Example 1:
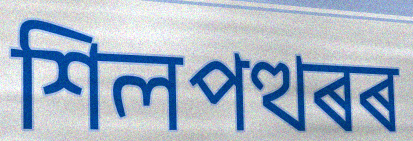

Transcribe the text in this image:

শিলপত্থৰৰ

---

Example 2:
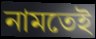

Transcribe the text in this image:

নামতেই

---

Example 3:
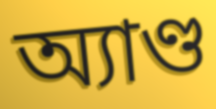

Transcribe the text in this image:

অ্যাণ্ড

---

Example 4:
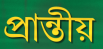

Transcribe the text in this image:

প্ৰান্তীয়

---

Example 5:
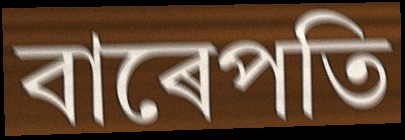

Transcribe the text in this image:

বাৰেপতি